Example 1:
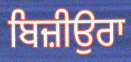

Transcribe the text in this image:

ਬਿਜ਼ੀਉਰਾ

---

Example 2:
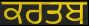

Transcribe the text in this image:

ਕਰਤਬ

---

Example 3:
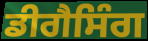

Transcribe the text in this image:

ਡੀਗੈਸਿੰਗ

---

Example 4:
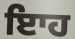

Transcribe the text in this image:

ਇਾਹ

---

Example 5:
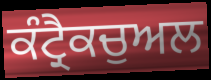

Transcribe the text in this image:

ਕੰਟ੍ਰੈਕਚੁਅਲ